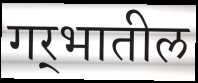
गर्भातील